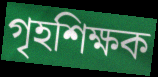
গৃহশিক্ষক